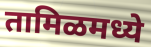
तामिळमध्ये